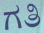
ಗತಿ